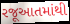
રજૂઆતમાંથી